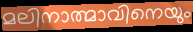
മലിനാത്മാവിനെയും